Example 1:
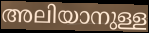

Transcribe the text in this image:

അലിയാനുള്ള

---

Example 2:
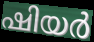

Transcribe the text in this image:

ഷിയർ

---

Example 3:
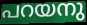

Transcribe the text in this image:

പറയനു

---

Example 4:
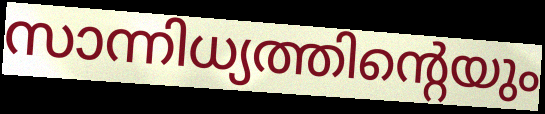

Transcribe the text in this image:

സാന്നിധ്യത്തിന്റെയും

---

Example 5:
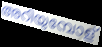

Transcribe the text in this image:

അറിയുമ്പോള്